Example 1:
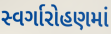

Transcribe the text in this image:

સ્વર્ગારોહણમાં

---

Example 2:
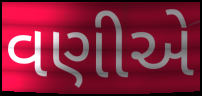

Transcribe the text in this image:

વણીએ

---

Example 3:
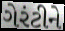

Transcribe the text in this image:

ગેરંટીને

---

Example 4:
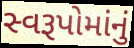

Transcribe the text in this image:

સ્વરૂપોમાંનું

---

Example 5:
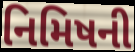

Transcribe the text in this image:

નિમિષની